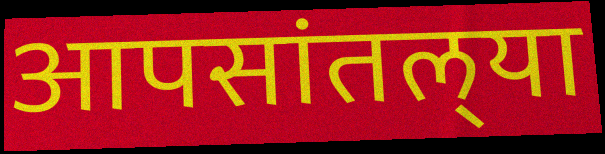
आपसांतल्या